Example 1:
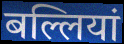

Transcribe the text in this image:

बल्लियां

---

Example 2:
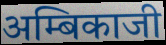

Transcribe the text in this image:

अम्बिकाजी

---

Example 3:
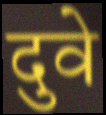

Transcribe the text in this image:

दुवे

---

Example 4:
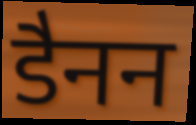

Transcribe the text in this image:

डैनन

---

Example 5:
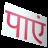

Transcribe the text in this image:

पाएं